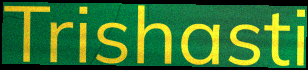
Trishasti